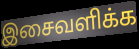
இசைவளிக்க